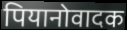
पियानोवादक